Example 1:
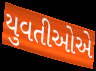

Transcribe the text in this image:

યુવતીઓએ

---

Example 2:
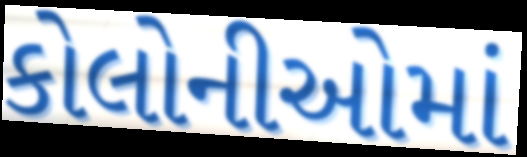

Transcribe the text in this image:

કોલોનીઓમાં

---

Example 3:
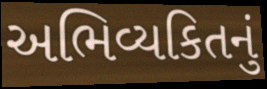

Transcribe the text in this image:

અભિવ્યકિતનું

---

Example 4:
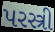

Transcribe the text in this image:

પરસ્ત્રી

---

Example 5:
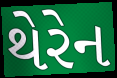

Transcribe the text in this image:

થેરેન